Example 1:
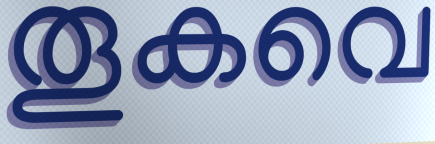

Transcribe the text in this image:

തൂകവെ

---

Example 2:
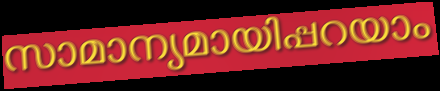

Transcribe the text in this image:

സാമാന്യമായിപ്പറയാം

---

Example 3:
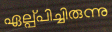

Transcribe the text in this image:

ഏല്പ്പിച്ചിരുന്നു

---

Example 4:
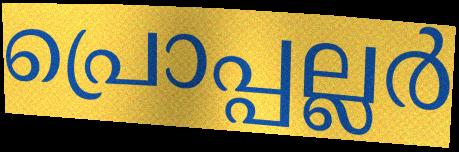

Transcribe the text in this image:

പ്രൊപ്പല്ലർ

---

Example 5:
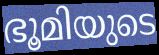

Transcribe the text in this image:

ഭൂമിയുടെ